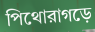
পিথোরাগড়ে